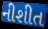
નીશીત